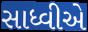
સાધ્વીએ